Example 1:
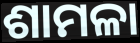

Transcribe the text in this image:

ଶାମଳା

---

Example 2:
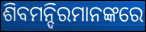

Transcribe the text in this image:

ଶିବମନ୍ଦିରମାନଙ୍କରେ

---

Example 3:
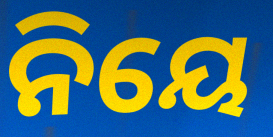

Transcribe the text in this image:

ନିୟେ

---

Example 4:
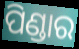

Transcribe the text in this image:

ପିଣ୍ଡାର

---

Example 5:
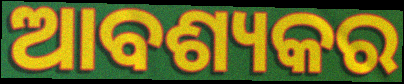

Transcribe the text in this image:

ଆବଶ୍ୟକର